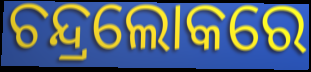
ଚନ୍ଦ୍ରଲୋକରେ